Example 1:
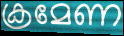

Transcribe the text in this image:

ക്രമേണ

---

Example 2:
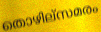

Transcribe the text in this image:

തൊഴില്സമരം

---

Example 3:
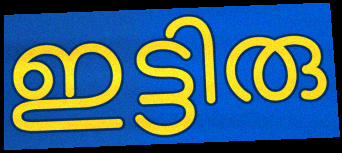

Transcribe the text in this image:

ഇട്ടിരു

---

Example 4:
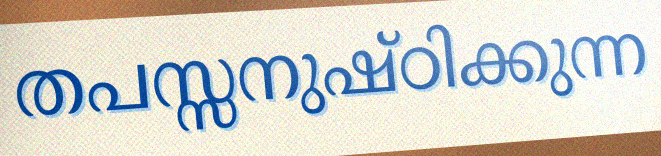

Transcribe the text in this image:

തപസ്സനുഷ്ഠിക്കുന്ന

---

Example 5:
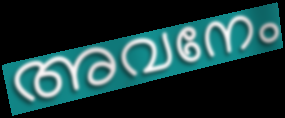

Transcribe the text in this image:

അവനേം